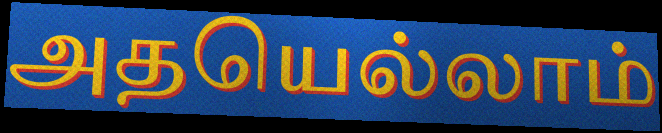
அதயெல்லாம்